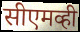
सीएमव्ही